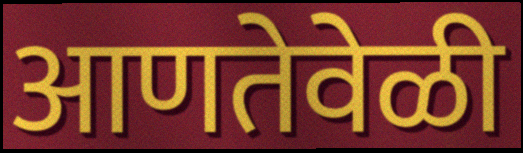
आणतेवेळी